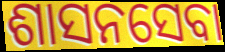
ଶାସନସେବା